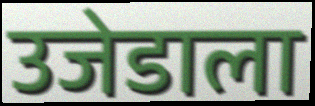
उजेडाला